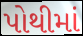
પોથીમાં